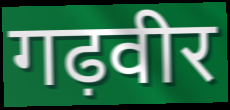
गढ़वीर